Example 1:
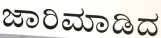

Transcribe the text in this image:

ಜಾರಿಮಾಡಿದ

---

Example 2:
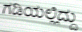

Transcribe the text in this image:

ಗಡಿಯಲ್ಲಿದ್ದು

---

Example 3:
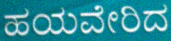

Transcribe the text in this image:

ಹಯವೇರಿದ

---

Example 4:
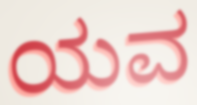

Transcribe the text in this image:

ಯವ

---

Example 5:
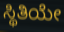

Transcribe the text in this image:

ಸ್ಥಿತಿಯೇ